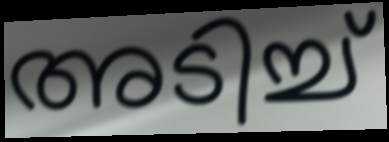
അടിച്ച്